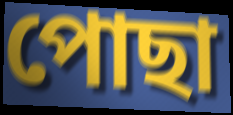
পোছা